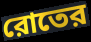
রোতের